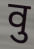
वु